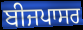
ਬੀਜਪਾਸਰ